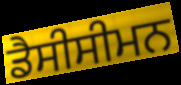
ਡੈਸੀਸੀਮਨ